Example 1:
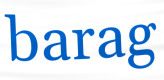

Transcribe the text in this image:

barag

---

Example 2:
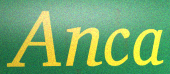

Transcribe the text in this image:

Anca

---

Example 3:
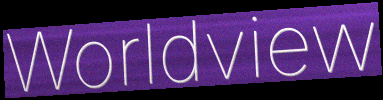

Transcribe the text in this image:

Worldview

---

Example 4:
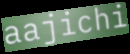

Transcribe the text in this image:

aajichi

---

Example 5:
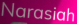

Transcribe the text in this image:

Narasiah